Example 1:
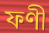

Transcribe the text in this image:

ফণী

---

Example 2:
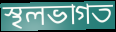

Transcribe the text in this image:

স্থলভাগত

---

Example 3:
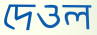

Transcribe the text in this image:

দেওল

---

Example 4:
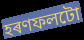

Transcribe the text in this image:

হৰণফলটো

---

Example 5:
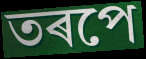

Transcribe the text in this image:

তৰপে